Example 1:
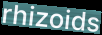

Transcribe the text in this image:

rhizoids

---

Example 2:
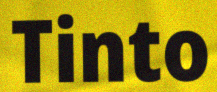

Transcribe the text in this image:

Tinto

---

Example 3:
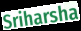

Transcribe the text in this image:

Sriharsha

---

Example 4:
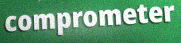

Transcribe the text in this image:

comprometer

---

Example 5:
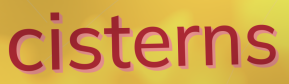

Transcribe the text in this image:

cisterns